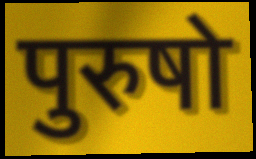
पुरुषो